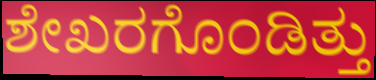
ಶೇಖರಗೊಂಡಿತ್ತು